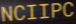
NCIIPC